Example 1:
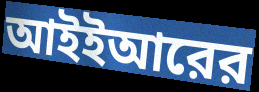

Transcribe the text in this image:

আইইআরের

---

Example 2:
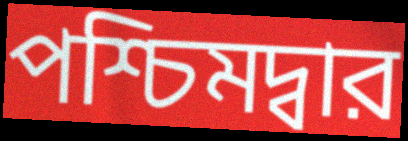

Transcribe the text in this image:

পশ্চিমদ্বার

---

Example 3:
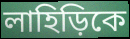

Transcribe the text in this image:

লাহিড়িকে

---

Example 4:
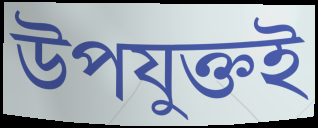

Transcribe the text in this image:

উপযুক্তই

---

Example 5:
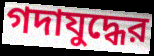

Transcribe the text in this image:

গদাযুদ্ধের